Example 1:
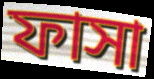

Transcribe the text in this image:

ফাসা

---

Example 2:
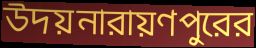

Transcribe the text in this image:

উদয়নারায়ণপুরের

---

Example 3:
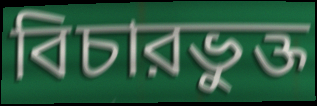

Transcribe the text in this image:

বিচারভুক্ত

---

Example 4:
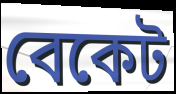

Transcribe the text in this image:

বেকেট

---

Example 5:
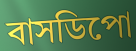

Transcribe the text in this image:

বাসডিপো